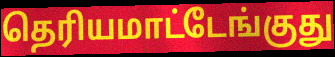
தெரியமாட்டேங்குது